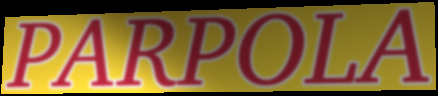
PARPOLA